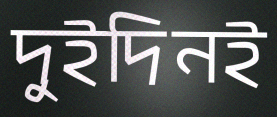
দুইদিনই